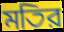
মতির